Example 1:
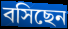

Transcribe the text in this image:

বসিছেন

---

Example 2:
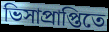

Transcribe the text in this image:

ভিসাপ্রাপ্তিতে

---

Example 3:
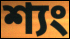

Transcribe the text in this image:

শ্যং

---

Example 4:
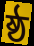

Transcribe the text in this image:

ষ্ঠ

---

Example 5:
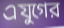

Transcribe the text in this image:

এযুগের